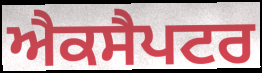
ਐਕਸੈਪਟਰ